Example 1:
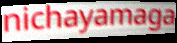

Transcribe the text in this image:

nichayamaga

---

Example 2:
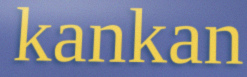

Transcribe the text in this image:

kankan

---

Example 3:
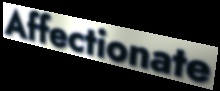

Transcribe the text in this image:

Affectionate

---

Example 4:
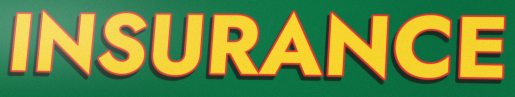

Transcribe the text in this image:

INSURANCE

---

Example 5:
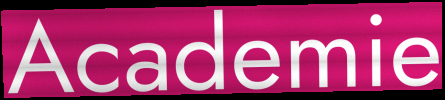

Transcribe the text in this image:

Academie